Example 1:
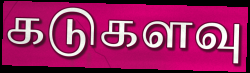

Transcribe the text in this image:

கடுகளவு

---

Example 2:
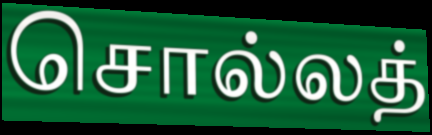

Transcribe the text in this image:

சொல்லத்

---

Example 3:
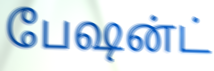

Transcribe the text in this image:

பேஷன்ட்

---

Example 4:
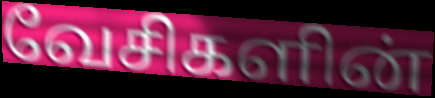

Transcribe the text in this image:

வேசிகளின்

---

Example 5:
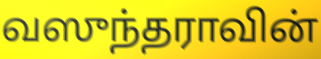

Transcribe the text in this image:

வஸுந்தராவின்